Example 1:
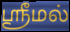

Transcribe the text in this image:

ஶ்ரீமல்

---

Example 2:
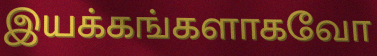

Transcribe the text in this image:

இயக்கங்களாகவோ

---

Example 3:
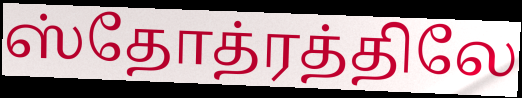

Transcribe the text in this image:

ஸ்தோத்ரத்திலே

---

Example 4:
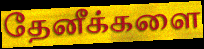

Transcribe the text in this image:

தேனீக்களை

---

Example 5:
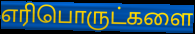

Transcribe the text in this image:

எரிபொருட்களை